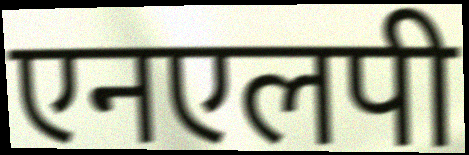
एनएलपी